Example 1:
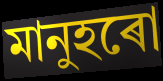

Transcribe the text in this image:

মানুহৰো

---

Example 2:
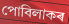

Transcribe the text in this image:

পোবিলাকৰ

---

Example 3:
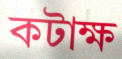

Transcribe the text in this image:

কটাক্ষ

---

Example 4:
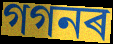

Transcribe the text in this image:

গগনৰ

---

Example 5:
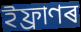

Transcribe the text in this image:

ইফ্ৰাণৰ